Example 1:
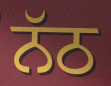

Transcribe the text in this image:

ਨੱਠ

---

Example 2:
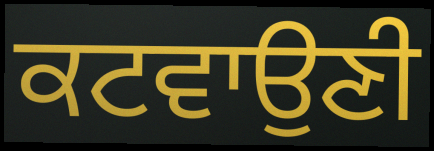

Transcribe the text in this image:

ਕਟਵਾਉਣੀ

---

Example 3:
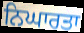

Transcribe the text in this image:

ਨਿਘਾਰਤਾ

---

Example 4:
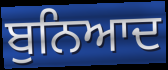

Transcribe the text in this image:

ਬੁਨਿਆਦ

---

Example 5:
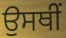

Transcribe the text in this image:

ਉਸਥੀਂ